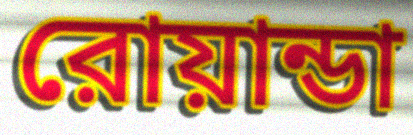
রোয়ান্ডা